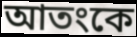
আতংকে